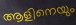
ആളിനെയും